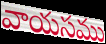
వాయసము